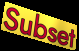
Subset